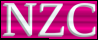
NZC